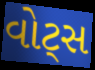
વોટ્સ